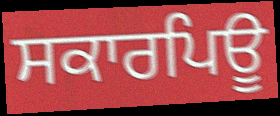
ਸਕਾਰਪਿਊ